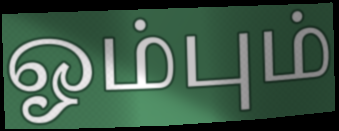
ஓம்பும்